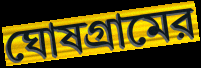
ঘোষগ্রামের